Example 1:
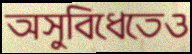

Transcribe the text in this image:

অসুবিধেতেও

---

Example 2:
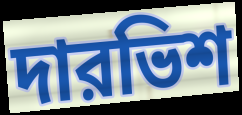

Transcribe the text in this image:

দারভিশ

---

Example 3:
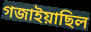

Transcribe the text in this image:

গজাইয়াছিল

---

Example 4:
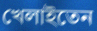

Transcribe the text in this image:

খেলাইতেন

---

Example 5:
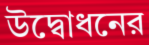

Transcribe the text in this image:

উদ্বোধনের